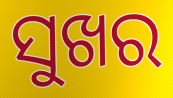
ସୁଖର